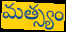
మత్స్యం